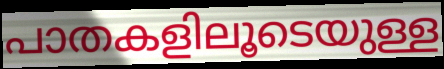
പാതകളിലൂടെയുള്ള